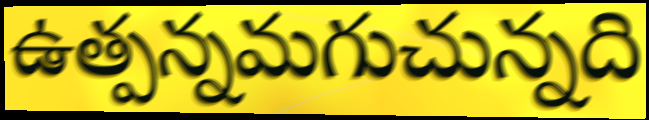
ఉత్పన్నమగుచున్నది